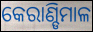
କେରାଣ୍ଡିମାଳ